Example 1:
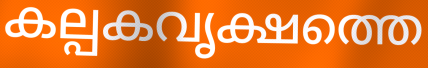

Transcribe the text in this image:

കല്പകവൃക്ഷത്തെ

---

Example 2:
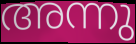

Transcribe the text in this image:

അന്നു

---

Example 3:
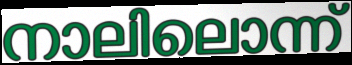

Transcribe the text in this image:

നാലിലൊന്ന്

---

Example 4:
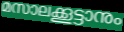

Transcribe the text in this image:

മസാലക്കൂട്ടാനും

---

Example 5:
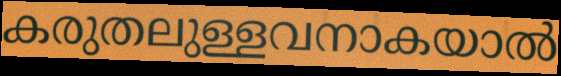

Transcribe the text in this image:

കരുതലുള്ളവനാകയാൽ